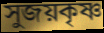
সুজয়কৃষ্ণ